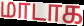
மாடாக